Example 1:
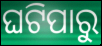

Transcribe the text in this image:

ଘଟିପାରୁ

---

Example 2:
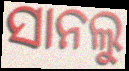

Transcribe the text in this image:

ସାନଲୁ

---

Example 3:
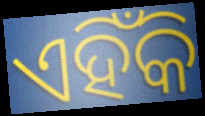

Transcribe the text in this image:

ଏହିଁକି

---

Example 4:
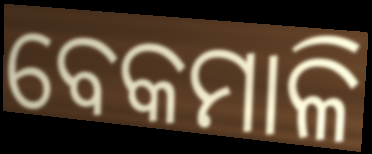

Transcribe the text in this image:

ବେକମାଳି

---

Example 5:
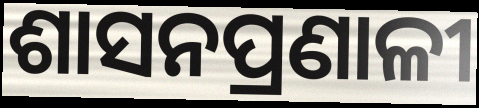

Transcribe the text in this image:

ଶାସନପ୍ରଣାଳୀ